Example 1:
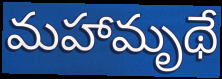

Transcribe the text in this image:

మహామృథే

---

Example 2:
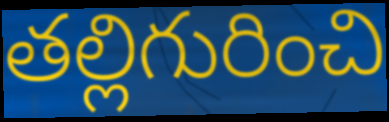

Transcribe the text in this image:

తల్లిగురించి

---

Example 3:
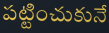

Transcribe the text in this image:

పట్టించుకునే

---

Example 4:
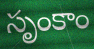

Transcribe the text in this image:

సృంకాం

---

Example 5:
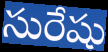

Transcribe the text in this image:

సురేషు